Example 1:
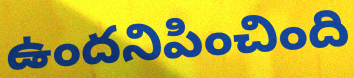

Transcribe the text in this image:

ఉందనిపించింది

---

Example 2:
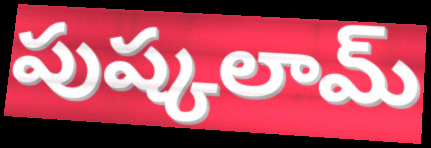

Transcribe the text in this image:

పుష్కలామ్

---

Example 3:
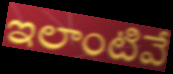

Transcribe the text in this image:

ఇలాంటివే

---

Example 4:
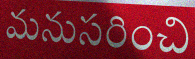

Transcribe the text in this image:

మనుసరించి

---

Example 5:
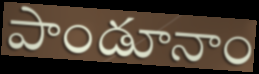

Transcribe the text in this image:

పాండూనాం